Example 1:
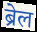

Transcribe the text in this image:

ब्रेल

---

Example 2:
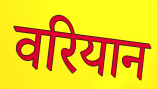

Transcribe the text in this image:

वरियान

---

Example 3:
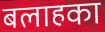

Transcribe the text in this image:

बलाहका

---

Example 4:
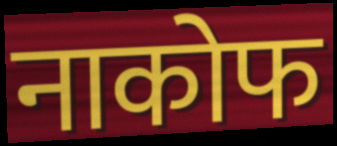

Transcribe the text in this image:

नाकोफ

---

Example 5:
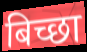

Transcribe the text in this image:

बिच्छा